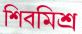
শিবমিশ্র